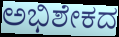
ಅಭಿಶೇಕದ